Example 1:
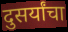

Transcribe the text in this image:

दुसर्यांचा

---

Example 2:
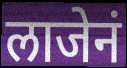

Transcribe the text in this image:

लाजेनं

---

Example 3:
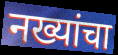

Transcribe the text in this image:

नख्यांचा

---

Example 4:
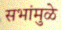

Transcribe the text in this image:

सभांमुळे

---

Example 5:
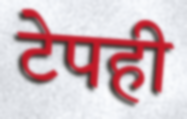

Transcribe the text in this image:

टेपही